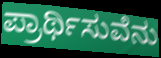
ಪ್ರಾರ್ಥಿಸುವೆನು